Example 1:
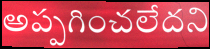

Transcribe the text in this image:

అప్పగించలేదని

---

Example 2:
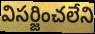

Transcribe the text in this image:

విసర్జించలేని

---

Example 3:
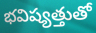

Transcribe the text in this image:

భవిష్యత్తుతో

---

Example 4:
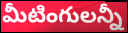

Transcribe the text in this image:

మీటింగులన్నీ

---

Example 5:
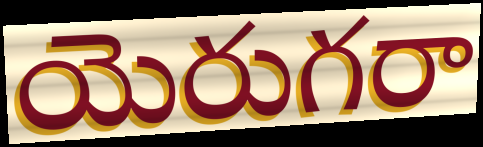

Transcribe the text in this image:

యెరుగరా